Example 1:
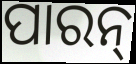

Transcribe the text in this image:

ପାରନ୍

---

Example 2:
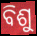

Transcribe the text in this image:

ବିଶୁ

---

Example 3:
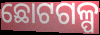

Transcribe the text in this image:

ଛୋଟଗଳ୍ପ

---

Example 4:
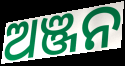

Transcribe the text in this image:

ଅଞ୍ଜନ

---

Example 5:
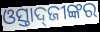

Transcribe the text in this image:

ଓସ୍ତାଦ୍‌ଜୀଙ୍କର